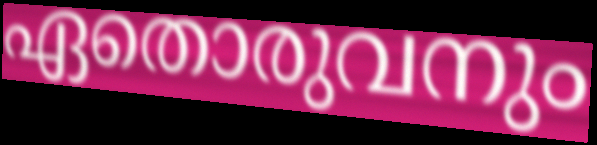
ഏതൊരുവനും